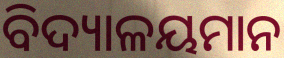
ବିଦ୍ୟାଳୟମାନ